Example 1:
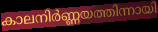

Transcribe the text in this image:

കാലനിർണ്ണയത്തിന്നായി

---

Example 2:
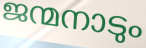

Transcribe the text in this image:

ജന്മനാടും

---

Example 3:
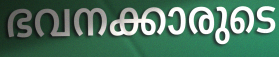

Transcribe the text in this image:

ഭവനക്കാരുടെ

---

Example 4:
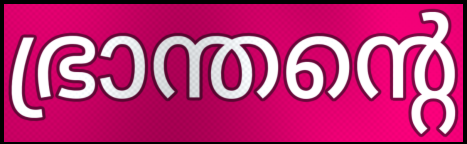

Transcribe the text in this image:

ഭ്രാന്തന്റെ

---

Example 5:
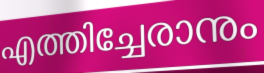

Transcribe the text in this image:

എത്തിച്ചേരാനും